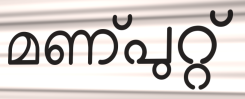
മണ്പുറ്റ്